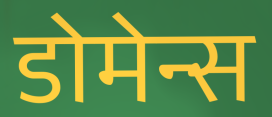
डोमेन्स